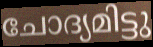
ചോദ്യമിട്ടു